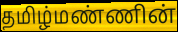
தமிழ்மண்ணின்